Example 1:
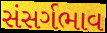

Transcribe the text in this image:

સંસર્ગભાવ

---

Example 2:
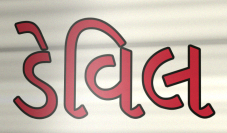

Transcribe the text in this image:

ડેવિલ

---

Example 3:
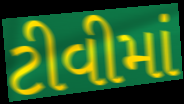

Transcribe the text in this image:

ટીવીમાં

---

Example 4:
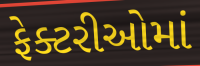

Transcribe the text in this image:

ફેક્ટરીઓમાં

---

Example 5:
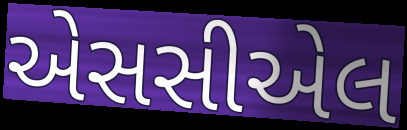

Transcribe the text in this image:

એસસીએલ